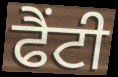
ਫੈਂਟੀ